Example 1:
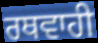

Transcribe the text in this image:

ਰਥਵਾਹੀ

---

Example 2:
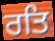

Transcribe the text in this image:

ਰਤਿ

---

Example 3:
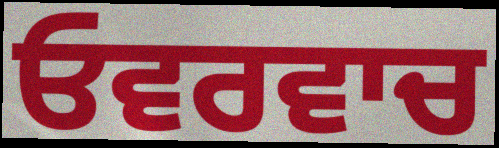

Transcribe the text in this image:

ਓਵਰਵਾਚ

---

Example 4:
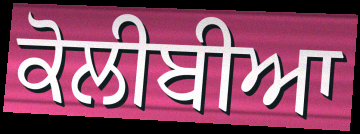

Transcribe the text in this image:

ਕੋਲੀਬੀਆ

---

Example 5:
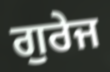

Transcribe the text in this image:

ਗੁਰੇਜ